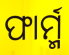
ଫାର୍ମ୍ମ